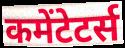
कमेंटेटर्स